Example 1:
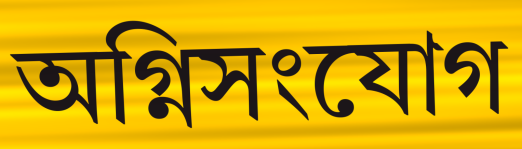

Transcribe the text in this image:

অগ্নিসংযোগ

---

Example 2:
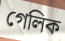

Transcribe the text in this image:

গেলিক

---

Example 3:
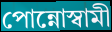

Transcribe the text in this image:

পোন্নোস্বামী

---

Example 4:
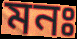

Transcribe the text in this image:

মনঃ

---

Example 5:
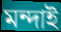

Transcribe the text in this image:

মন্দাই